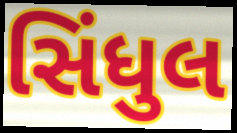
સિંધુલ